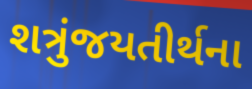
શત્રુંજયતીર્થના